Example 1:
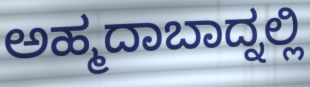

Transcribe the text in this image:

ಅಹ್ಮದಾಬಾದ್ನಲ್ಲಿ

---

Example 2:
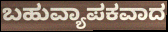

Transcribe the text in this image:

ಬಹುವ್ಯಾಪಕವಾದ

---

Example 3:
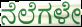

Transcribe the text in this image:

ನೆಲೆಗಳೇ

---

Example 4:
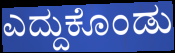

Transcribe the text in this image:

ಎದ್ದುಕೊಂಡು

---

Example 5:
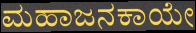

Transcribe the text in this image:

ಮಹಾಜನಕಾಯೇ